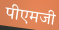
पीएमजी